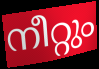
നീറ്റും